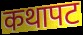
कथापट